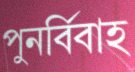
পুনৰ্বিবাহ